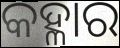
କହ୍ଳାର